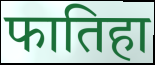
फातिहा